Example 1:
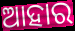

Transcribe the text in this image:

ଆହାର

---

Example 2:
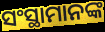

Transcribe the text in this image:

ସଂସ୍ଥାମାନଙ୍କ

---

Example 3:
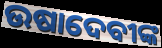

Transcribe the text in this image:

ଉଷାଦେବୀଙ୍କ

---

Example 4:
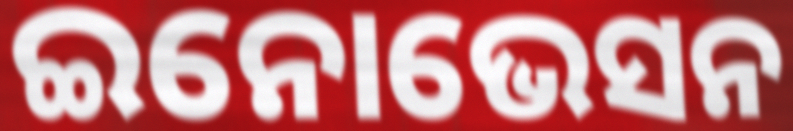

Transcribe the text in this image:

ଇନୋଭେସନ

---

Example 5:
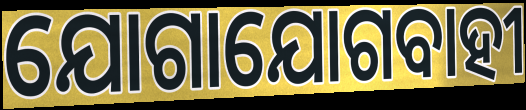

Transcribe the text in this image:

ଯୋଗାଯୋଗବାହୀ